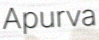
Apurva